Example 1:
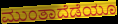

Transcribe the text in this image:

ಮುಂತಾದೆಡೆಯೂ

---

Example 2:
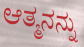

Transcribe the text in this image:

ಆತ್ಮನನ್ನು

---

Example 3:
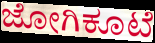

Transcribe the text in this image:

ಜೋಗಿಕೂಟೆ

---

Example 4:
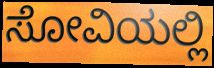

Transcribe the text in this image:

ಸೋವಿಯಲ್ಲಿ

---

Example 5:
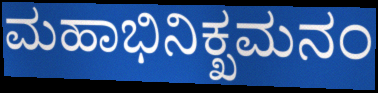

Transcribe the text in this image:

ಮಹಾಭಿನಿಕ್ಖಮನಂ